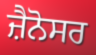
ਜ਼ੈਨੋਸਰ